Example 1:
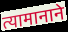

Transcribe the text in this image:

त्यामानाने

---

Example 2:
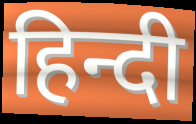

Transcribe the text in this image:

हिन्दी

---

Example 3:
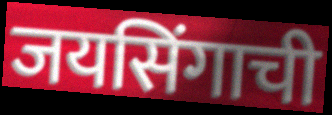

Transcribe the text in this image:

जयसिंगाची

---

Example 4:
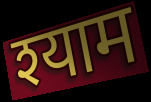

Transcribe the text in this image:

श्‍याम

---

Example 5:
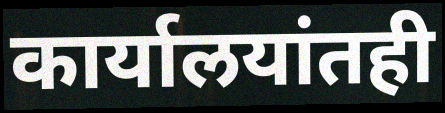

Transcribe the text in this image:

कार्यालयांतही